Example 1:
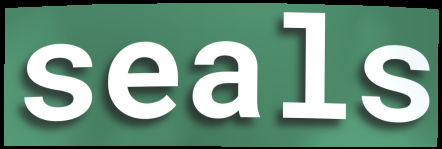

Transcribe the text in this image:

seals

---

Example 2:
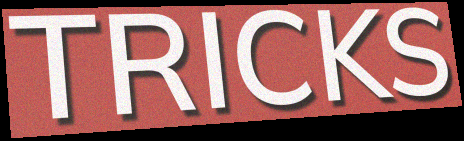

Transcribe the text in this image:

TRICKS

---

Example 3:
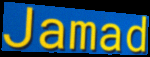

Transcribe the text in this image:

Jamad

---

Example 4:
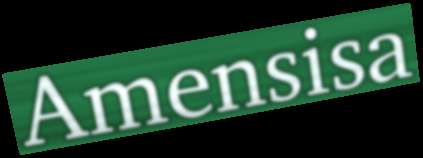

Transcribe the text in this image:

Amensisa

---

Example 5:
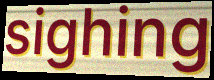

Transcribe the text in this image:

sighing